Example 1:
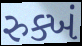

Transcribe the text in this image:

રુક્ખં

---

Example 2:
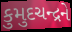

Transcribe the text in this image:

કુમુદચન્દ્રને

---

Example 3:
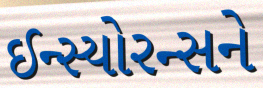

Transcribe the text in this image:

ઈન્સ્યોરન્સને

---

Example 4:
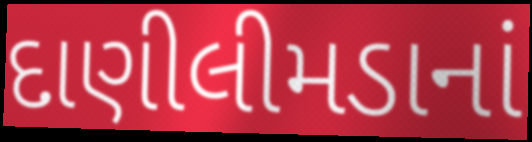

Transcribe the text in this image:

દાણીલીમડાનાં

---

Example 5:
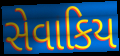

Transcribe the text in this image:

સેવાકિય